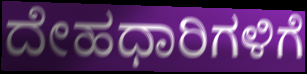
ದೇಹಧಾರಿಗಳಿಗೆ